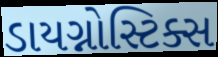
ડાયગ્નોસ્ટિક્સ